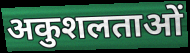
अकुशलताओं